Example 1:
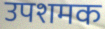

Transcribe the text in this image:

उपशमक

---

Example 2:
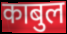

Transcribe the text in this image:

काबुल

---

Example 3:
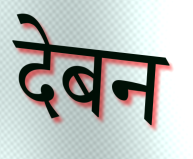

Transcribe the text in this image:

देबन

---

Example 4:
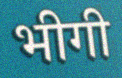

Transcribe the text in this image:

भीगी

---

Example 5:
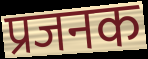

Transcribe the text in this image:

प्रजनक